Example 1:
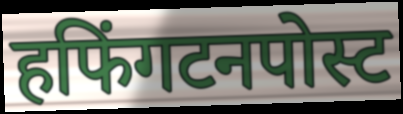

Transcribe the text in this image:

हफिंगटनपोस्ट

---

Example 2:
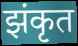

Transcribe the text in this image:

झंकृत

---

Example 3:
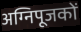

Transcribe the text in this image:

अग्निपूजकों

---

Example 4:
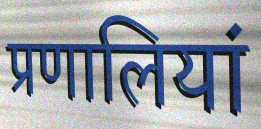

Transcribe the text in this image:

प्रणालियां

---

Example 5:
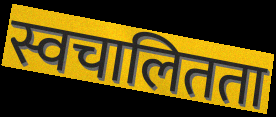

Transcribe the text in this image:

स्वचालितता